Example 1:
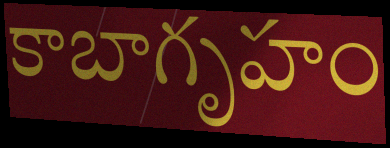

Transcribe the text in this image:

కాబాగృహం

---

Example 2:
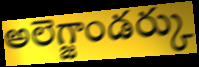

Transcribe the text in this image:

అలెగ్జాండర్కు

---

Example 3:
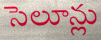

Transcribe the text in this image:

సెలూన్లు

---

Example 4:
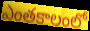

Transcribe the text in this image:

ఎంతకాలంలో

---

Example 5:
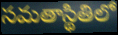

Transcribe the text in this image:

సమతాస్థితిలో